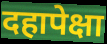
दहापेक्षा